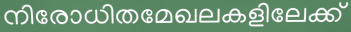
നിരോധിതമേഖലകളിലേക്ക്